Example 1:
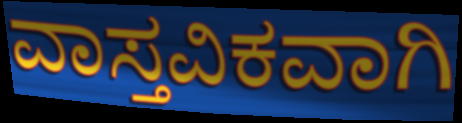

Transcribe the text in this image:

ವಾಸ್ತವಿಕವಾಗಿ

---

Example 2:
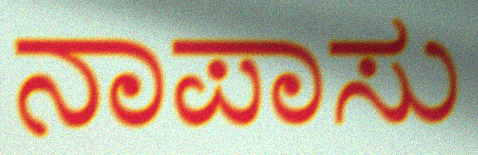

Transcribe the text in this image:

ನಾಪಾಸು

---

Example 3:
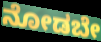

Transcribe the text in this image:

ನೋಡಬೇ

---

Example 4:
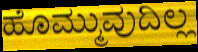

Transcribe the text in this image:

ಹೊಮ್ಮುವುದಿಲ್ಲ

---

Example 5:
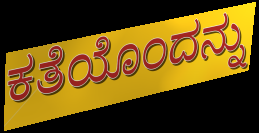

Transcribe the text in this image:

ಕತೆಯೊಂದನ್ನು